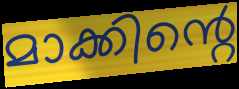
മാക്കിന്റെ